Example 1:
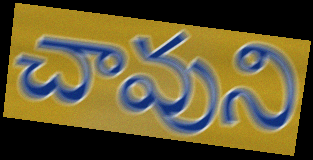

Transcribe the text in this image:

చావుని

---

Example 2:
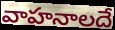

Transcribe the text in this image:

వాహనాలదే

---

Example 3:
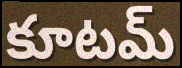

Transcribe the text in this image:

కూటమ్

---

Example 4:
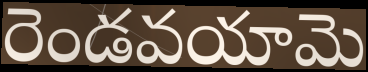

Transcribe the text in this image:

రెండవయామె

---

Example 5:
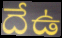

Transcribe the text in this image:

దేఉ